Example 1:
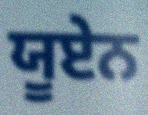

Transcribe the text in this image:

ਯੂਏਨ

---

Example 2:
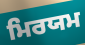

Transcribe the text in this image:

ਮਿਰਯਮ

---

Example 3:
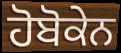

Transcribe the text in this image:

ਹੋਬੋਕੇਨ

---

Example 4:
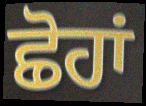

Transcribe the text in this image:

ਛੋਹਾਂ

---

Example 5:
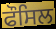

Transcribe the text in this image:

ਫੌਸਿਲ